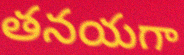
తనయగా